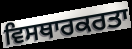
ਵਿਸਥਾਰਕਰਤਾ